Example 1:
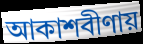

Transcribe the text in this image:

আকাশবীণায়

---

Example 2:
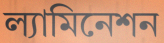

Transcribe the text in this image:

ল্যামিনেশন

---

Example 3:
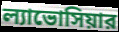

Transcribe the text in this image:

ল্যাভোসিয়ার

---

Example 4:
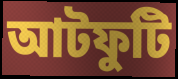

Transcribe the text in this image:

আটফুটি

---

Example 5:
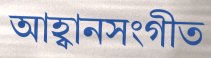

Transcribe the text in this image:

আহ্বানসংগীত